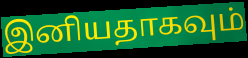
இனியதாகவும்